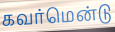
கவர்மென்டு